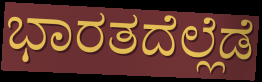
ಭಾರತದೆಲ್ಲೆಡೆ